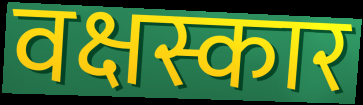
वक्षस्कार